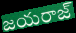
జయరాజ్